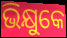
ଭିକ୍ଷୁକେ